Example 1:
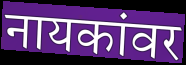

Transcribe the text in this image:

नायकांवर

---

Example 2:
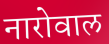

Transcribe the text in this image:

नारोवाल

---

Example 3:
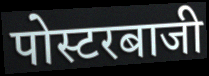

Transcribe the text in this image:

पोस्टरबाजी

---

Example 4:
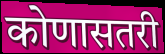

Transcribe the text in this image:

कोणासतरी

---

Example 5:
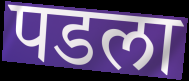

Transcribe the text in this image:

पडला